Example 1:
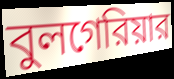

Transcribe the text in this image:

বুলগেরিয়ার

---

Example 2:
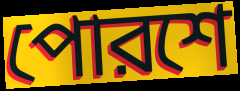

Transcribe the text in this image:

পোরশে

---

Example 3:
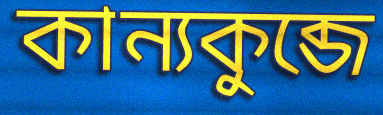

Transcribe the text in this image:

কান্যকুব্জে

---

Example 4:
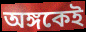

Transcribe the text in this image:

অঙ্গকেই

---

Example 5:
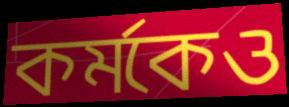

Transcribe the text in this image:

কর্মকেও